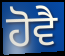
ਹੋਵੈ